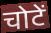
चोटें